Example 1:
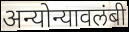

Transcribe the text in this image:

अन्योन्यावलंबी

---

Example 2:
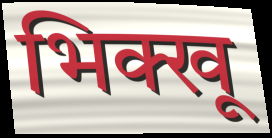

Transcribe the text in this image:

भिक्‍खू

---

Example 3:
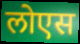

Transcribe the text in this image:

लोएस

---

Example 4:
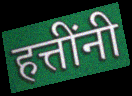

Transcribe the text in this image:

हत्तींनी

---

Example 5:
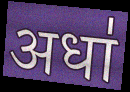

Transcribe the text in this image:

अधा॑